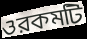
ওরকমটি